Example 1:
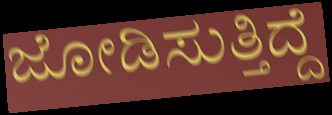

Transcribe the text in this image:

ಜೋಡಿಸುತ್ತಿದ್ದೆ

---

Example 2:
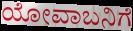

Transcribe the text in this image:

ಯೋವಾಬನಿಗೆ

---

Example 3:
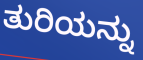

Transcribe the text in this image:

ತುರಿಯನ್ನು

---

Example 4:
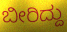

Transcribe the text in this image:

ಬೀರಿದ್ದು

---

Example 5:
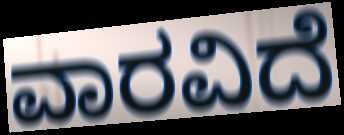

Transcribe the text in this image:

ವಾರವಿದೆ